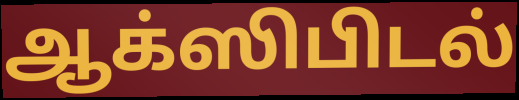
ஆக்ஸிபிடல்